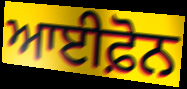
ਆਈਫ਼ੋਨ